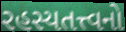
રહસ્યતત્ત્વનો